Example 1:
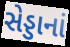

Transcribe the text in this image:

સેડ્ડાનાં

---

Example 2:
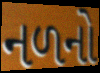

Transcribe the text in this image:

નળનો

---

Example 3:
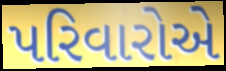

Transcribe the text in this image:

પરિવારોએ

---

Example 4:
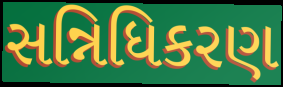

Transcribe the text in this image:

સન્નિધિકરણ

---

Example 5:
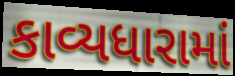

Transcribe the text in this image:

કાવ્યધારામાં